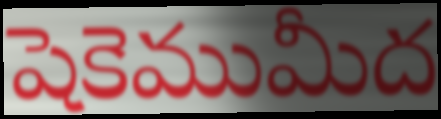
షెకెముమీద